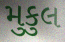
મુકુલ